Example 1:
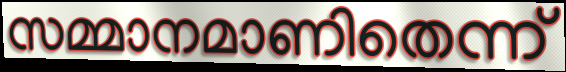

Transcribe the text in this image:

സമ്മാനമാണിതെന്ന്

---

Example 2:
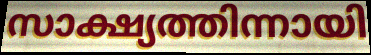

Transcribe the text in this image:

സാക്ഷ്യത്തിന്നായി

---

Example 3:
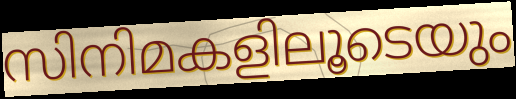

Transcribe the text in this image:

സിനിമകളിലൂടെയും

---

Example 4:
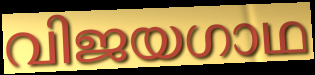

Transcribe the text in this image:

വിജയഗാഥ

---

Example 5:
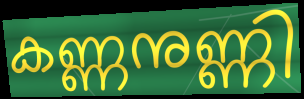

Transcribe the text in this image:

കണ്ണനുണ്ണി